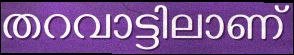
തറവാട്ടിലാണ്